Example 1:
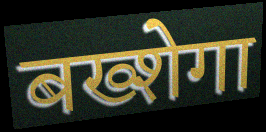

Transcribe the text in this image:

बख्शेगा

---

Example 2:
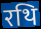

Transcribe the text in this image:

रथि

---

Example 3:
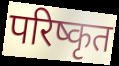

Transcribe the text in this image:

परिष्कृत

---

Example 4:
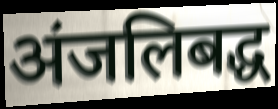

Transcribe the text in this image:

अंजलिबद्ध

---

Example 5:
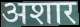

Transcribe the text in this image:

अशार